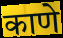
काणे